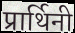
प्रार्थिनी